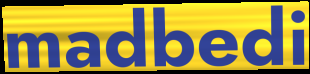
madbedi